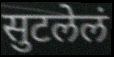
सुटलेलं